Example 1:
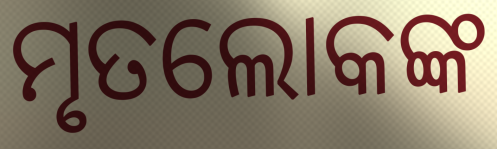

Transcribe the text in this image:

ମୃତଲୋକଙ୍କ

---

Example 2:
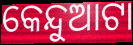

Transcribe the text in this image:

କେନ୍ଦୁଆଟା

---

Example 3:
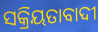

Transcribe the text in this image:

ସକ୍ରିୟତାବାଦୀ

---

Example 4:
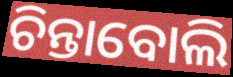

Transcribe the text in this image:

ଚିନ୍ତାବୋଲି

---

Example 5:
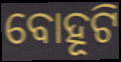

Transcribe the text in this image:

ବୋହୂଟି